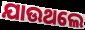
ଯାଉଥଲେ